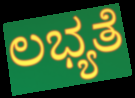
ಲಭ್ಯತೆ